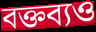
বক্তব্যও